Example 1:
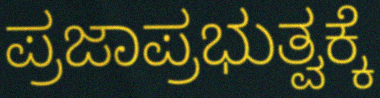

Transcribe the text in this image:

ಪ್ರಜಾಪ್ರಭುತ್ವಕ್ಕೆ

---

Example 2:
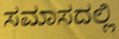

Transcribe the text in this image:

ಸಮಾಸದಲ್ಲಿ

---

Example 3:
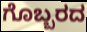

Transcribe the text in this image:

ಗೊಬ್ಬರದ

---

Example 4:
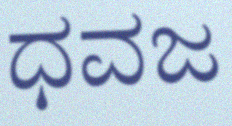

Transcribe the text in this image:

ಧವಜ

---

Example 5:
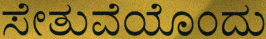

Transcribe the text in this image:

ಸೇತುವೆಯೊಂದು